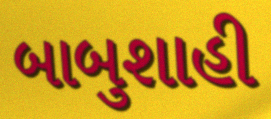
બાબુશાહી